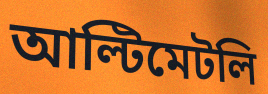
আল্টিমেটলি